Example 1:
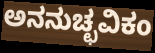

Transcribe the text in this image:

ಅನನುಚ್ಛವಿಕಂ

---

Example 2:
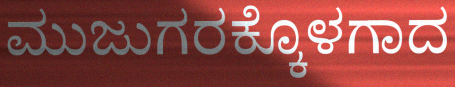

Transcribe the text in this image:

ಮುಜುಗರಕ್ಕೊಳಗಾದ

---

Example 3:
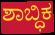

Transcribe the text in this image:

ಶಾಬ್ಧಿಕ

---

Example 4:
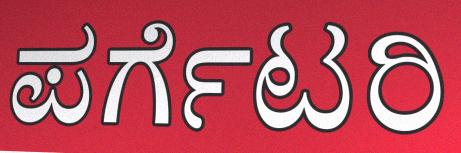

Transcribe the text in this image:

ಪರ್ಗೆಟರಿ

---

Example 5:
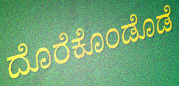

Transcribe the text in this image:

ದೊರೆಕೊಂಡೊಡೆ